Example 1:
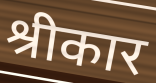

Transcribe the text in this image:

श्रीकार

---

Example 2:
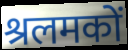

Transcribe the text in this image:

श्रलमकों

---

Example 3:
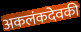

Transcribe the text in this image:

अकलंकदेवकी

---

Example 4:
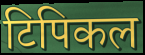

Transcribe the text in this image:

टिपिकल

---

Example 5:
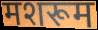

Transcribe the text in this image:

मशरूम